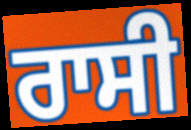
ਰਾਸੀ